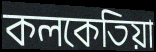
কলকেতিয়া